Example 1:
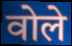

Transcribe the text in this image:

वोले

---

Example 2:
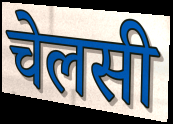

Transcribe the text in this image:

चेलसी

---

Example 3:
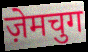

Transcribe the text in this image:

ज़ेमचुग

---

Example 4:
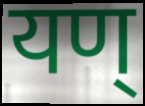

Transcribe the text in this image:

यण्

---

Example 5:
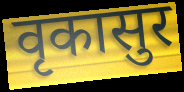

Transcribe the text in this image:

वृकासुर